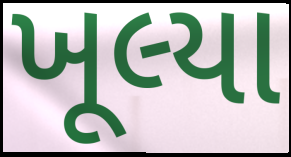
ખૂલ્યા